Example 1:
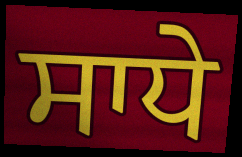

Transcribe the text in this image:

ਸਾਧੇ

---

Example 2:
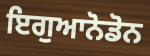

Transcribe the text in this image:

ਇਗੁਆਨੋਡੋਨ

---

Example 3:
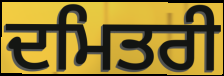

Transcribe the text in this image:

ਦਮਿਤਰੀ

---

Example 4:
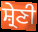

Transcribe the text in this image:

ਸ਼੍ਰੇਣੀ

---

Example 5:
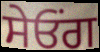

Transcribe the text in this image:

ਸੇਓਂਗ